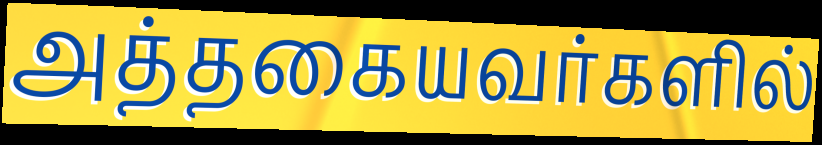
அத்தகையவர்களில்